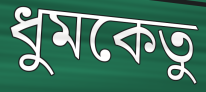
ধুমকেতু